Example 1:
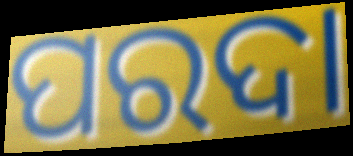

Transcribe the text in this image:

ପରଦା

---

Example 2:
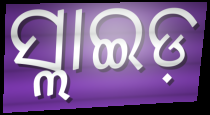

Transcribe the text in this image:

ସ୍ଲାଇଡ଼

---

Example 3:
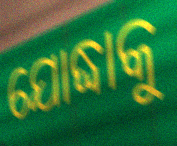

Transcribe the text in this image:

ଯୋଦ୍ଧାକୁ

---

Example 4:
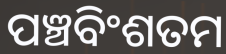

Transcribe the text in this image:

ପଞ୍ଚବିଂଶତମ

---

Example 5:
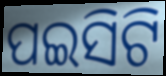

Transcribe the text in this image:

ପଇସିଟି